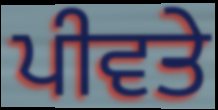
ਪੀਵਤੇ